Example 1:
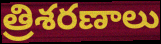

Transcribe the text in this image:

త్రిశరణాలు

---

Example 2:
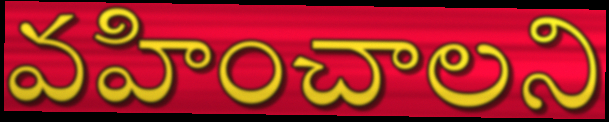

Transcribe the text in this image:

వహించాలని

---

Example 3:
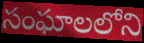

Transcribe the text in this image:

సంఘాలలోని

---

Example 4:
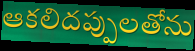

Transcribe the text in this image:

ఆకలిదప్పులతోను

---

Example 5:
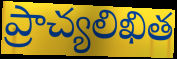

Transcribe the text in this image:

ప్రాచ్యలిఖిత